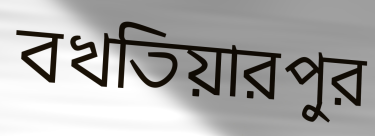
বখতিয়ারপুর